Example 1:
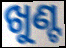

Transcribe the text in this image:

ଖୁଣ୍ଟ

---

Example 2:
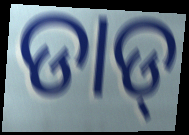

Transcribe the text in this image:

ଡାଡ୍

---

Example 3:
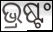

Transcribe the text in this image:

ଭ୍ରଷ୍ଟଂ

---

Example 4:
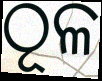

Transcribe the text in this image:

ଠୂଳ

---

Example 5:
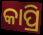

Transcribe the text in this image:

କାପ୍ରି